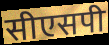
सीएसपी